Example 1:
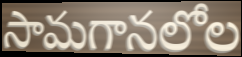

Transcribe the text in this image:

సామగానలోల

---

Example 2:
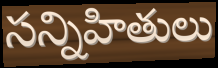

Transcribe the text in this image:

సన్నిహితులు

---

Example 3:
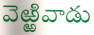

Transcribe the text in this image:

వెఱ్ఱివాడు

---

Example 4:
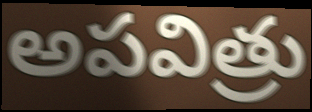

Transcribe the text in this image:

అపవిత్రు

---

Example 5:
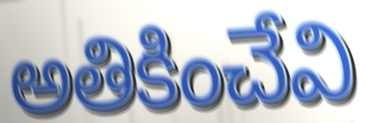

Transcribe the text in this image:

అతికించేవి